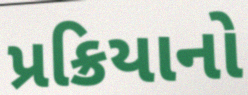
પ્રક્રિયાનો